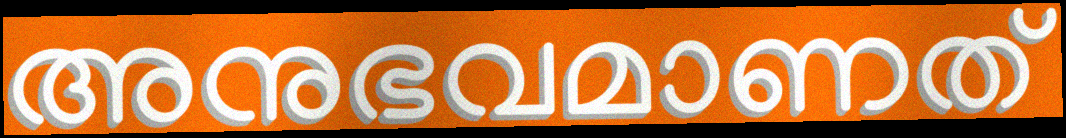
അനുഭവമാണത്